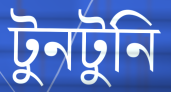
টুনটুনি